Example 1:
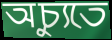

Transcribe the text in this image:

অচ্যুতে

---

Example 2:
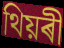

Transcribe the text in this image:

থিয়ৰী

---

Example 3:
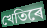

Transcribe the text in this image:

খেতিৰে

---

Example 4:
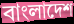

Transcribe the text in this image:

বাংলাদেশ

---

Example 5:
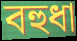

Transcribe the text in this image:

বহুধা